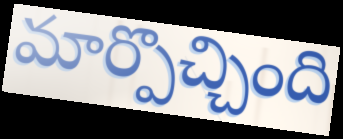
మార్పొచ్చింది